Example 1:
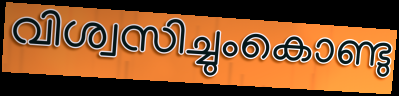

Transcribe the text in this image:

വിശ്വസിച്ചുംകൊണ്ടു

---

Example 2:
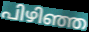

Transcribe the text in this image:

പിഴിഞ്ഞ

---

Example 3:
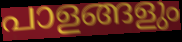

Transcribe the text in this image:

പാളങ്ങളും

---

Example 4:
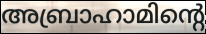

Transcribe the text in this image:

അബ്രാഹാമിന്റെ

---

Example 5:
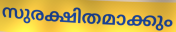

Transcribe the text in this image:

സുരക്ഷിതമാക്കും